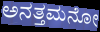
ಅನತ್ತಮನೋ